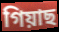
গিয়াছ